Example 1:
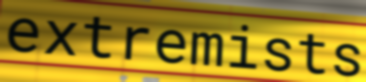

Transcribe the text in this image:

extremists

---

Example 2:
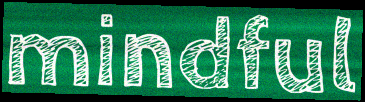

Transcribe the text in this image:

mindful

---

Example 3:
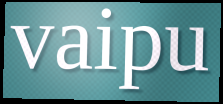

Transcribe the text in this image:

vaipu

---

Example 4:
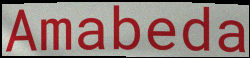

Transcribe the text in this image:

Amabeda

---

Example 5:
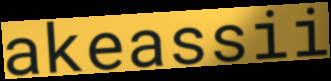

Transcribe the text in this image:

akeassii